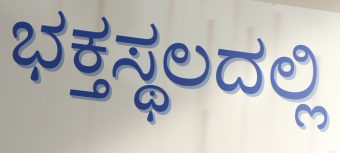
ಭಕ್ತಸ್ಥಲದಲ್ಲಿ